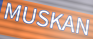
MUSKAN